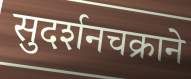
सुदर्शनचक्राने